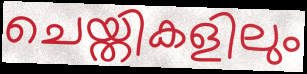
ചെയ്തികളിലും